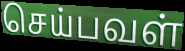
செய்பவள்